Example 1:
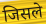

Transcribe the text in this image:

जिसले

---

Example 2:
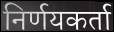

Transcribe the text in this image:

निर्णयकर्ता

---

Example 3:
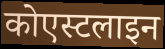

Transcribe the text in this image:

कोएस्टलाइन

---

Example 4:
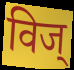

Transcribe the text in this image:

विज्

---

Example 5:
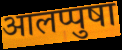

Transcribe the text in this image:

आलप्पुषा